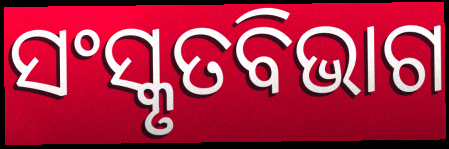
ସଂସ୍କୃତବିଭାଗ